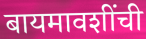
बायमावशींची